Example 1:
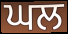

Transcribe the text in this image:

ਘਲ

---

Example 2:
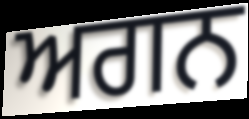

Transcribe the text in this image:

ਅਗਨ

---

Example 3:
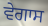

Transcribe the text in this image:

ਵੇਗਾਸ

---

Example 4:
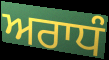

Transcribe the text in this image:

ਅਰਾਧੰ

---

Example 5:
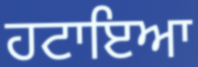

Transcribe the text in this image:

ਹਟਾਇਆ